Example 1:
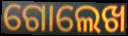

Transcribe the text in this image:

ଗୋଲେଖ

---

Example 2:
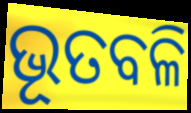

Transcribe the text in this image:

ଭୂତବଳି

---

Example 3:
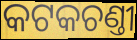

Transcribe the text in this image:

କଟକଚଣ୍ତୀ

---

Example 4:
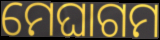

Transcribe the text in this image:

ମେଘାଗମ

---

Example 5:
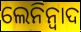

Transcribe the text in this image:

ଲେନିନ୍ବାଦ